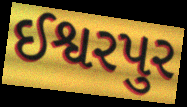
ઈશ્વરપુર